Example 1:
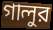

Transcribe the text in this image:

গালুর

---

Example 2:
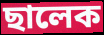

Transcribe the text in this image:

ছালেক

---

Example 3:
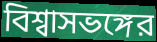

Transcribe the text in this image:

বিশ্বাসভঙ্গের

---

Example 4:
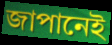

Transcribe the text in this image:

জাপানেই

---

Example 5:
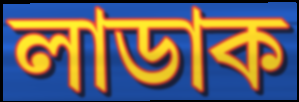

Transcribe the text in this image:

লাডাক